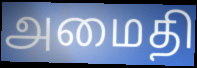
அமைதி